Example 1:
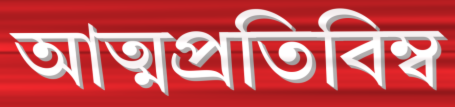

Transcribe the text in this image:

আত্মপ্রতিবিম্ব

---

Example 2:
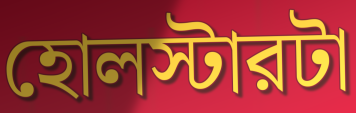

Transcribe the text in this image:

হোলস্টারটা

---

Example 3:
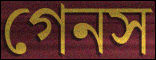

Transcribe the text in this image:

গেনস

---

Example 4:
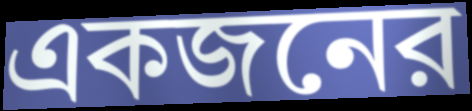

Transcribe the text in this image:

একজনের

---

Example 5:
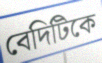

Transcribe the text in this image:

বেদিটিকে